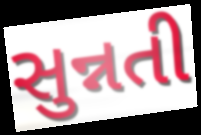
સુન્નતી